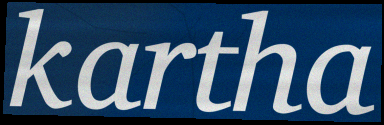
kartha